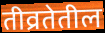
तीव्रतेतील